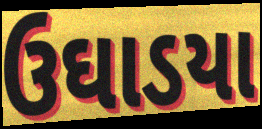
ઉઘાડયા